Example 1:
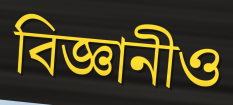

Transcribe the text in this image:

বিজ্ঞানীও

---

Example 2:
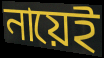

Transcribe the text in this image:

নায়েই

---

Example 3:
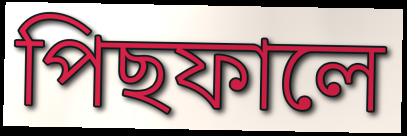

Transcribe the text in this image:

পিছফালে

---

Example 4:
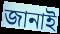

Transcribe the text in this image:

জানাই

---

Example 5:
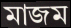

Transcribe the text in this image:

মাজম